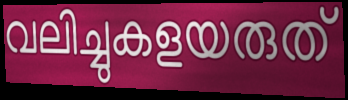
വലിച്ചുകളയരുത്